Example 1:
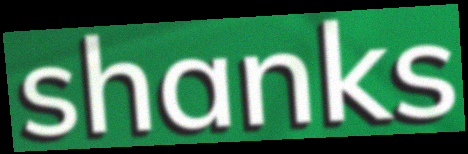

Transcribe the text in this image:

shanks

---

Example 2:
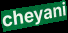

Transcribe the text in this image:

cheyani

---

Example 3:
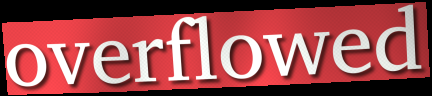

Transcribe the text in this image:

overflowed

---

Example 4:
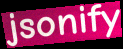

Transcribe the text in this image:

jsonify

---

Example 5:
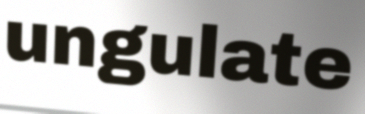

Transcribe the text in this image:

ungulate